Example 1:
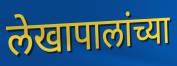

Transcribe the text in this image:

लेखापालांच्या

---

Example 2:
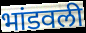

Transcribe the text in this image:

भांडवली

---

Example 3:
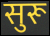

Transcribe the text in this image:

सुरू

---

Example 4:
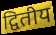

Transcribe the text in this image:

द्वितीय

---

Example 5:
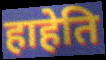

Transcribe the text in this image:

हाहेति